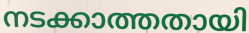
നടക്കാത്തതായി